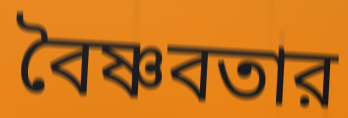
বৈষ্ণবতার